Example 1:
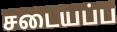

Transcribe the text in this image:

சடையப்ப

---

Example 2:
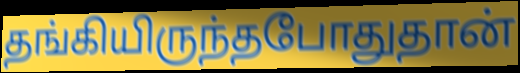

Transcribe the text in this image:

தங்கியிருந்தபோதுதான்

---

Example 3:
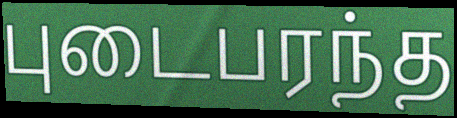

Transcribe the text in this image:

புடைபரந்த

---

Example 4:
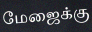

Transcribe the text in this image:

மேஜைக்கு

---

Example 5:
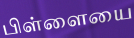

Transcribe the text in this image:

பிள்ளையை